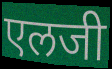
एलजी